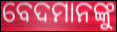
ବେଦମାନଙ୍କୁ